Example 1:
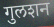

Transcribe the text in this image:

गुलशन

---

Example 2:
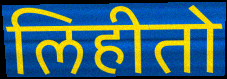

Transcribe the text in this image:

लिहीतो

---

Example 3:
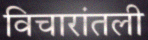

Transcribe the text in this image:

विचारांतली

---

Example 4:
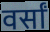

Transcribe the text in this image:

वर्सां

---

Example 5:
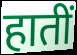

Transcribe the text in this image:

हातीं